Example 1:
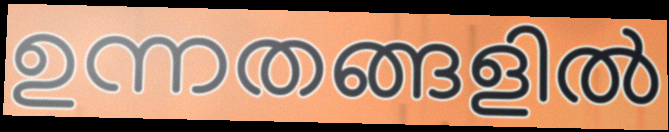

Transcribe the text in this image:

ഉന്നതങ്ങളിൽ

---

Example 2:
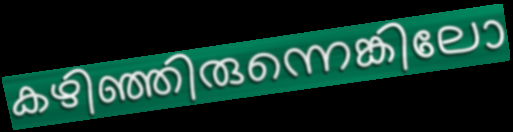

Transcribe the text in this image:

കഴിഞ്ഞിരുന്നെങ്കിലോ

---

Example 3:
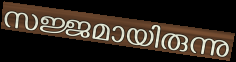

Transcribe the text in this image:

സജ്ജമായിരുന്നു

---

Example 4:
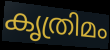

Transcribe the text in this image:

കൃത്രിമം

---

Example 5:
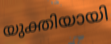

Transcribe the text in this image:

യുക്തിയായി